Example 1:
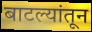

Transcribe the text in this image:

बाटल्यांतून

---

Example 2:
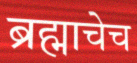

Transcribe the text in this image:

ब्रह्माचेच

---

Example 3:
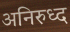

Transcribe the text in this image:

अनिरुध्द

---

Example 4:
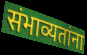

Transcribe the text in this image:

संभाव्यतांना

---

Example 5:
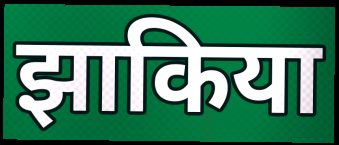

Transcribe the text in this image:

झाकिया